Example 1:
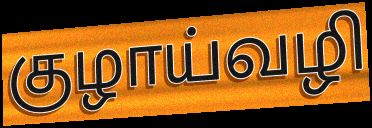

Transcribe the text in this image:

குழாய்வழி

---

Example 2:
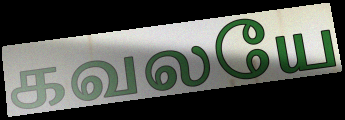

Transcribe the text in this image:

கவலயே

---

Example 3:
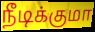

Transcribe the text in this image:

நீடிக்குமா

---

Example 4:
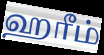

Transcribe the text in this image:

ஹரீம்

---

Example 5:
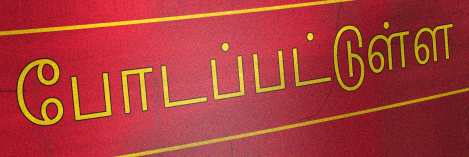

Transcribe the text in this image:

போடப்பட்டுள்ள